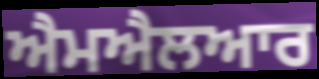
ਐਮਐਲਆਰ